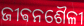
ଜୀଵନଶୈଳୀ